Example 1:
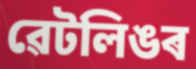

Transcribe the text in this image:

ৱেটলিঙৰ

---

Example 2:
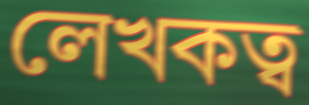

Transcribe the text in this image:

লেখকত্ব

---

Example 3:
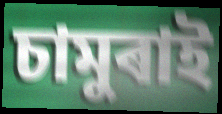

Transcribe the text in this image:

চামুৰাই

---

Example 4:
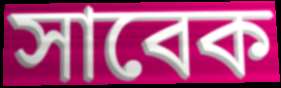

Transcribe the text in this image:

সাবেক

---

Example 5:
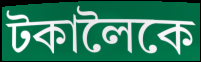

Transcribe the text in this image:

টকালৈকে